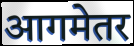
आगमेतर